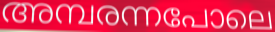
അമ്പരന്നപോലെ